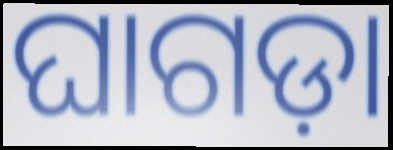
ଘାଗଡ଼ା